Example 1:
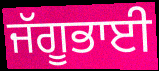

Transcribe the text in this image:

ਜੱਗੂਭਾਈ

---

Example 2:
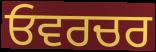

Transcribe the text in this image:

ਓਵਰਚਰ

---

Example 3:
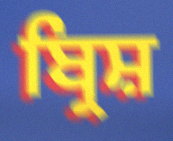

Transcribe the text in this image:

ਬ੍ਰਿਸ਼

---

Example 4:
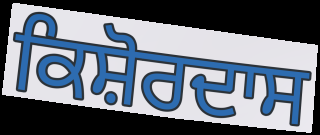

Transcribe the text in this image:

ਕਿਸ਼ੋਰਦਾਸ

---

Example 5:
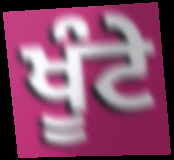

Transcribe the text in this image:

ਖੂੰਟੇ